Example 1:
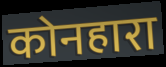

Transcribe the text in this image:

कोनहारा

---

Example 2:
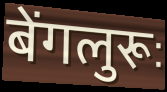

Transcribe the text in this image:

बेंगलुरूः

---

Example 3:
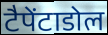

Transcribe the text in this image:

टैपेंटाडोल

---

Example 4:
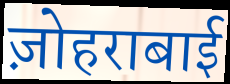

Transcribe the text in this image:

ज़ोहराबाई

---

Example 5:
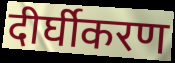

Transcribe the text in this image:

दीर्घीकरण